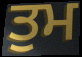
ਤੁਮ